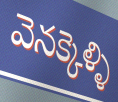
వెనక్కెళ్ళి